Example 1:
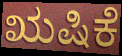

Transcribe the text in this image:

ಋಷಿಕೆ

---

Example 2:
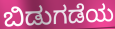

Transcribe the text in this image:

ಬಿಡುಗಡೆಯ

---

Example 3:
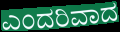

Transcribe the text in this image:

ಎಂದರಿವಾದ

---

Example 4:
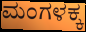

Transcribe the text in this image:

ಮಂಗಳಕ್ಕ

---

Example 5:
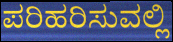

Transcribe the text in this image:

ಪರಿಹರಿಸುವಲ್ಲಿ